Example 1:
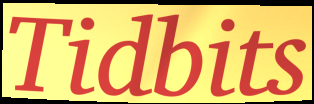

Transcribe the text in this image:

Tidbits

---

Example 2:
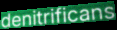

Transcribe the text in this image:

denitrificans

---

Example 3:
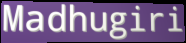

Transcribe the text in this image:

Madhugiri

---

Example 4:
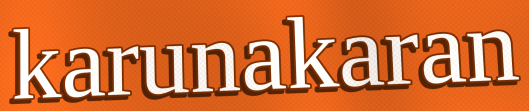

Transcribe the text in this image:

karunakaran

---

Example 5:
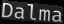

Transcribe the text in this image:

Dalma